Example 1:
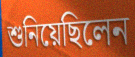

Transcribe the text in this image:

শুনিয়েছিলেন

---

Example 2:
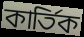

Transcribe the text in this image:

কার্তিক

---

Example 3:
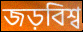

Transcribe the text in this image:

জড়বিশ্ব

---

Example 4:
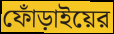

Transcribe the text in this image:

ফোঁড়াইয়ের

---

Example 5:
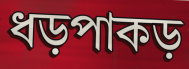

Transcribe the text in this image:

ধড়পাকড়